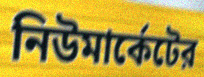
নিউমার্কেটের